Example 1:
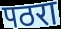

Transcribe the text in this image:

पठरा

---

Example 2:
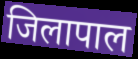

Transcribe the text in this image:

जिलापाल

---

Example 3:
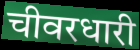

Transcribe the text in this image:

चीवरधारी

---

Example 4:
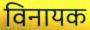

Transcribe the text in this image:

विनायक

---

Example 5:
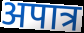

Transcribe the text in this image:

अपात्र